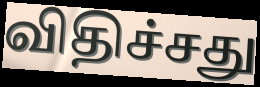
விதிச்சது